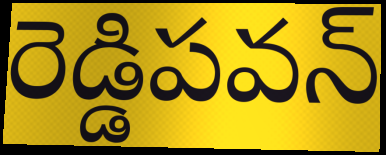
రెడ్డిపవన్